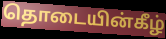
தொடையின்கீழ்